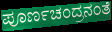
ಪೂರ್ಣಚಂದ್ರನಂತೆ